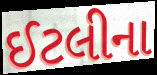
ઈટલીના